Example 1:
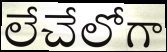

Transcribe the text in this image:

లేచేలోగా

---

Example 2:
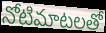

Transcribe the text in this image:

నోటిమాటలతో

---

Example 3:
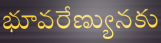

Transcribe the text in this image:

భూవరేణ్యునకు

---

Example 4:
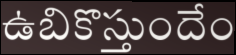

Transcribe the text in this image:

ఉబికొస్తుందేం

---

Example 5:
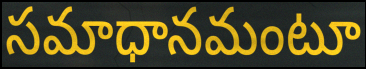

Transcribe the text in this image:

సమాధానమంటూ